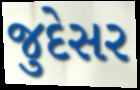
જુદેસર